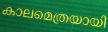
കാലമെത്രയായി